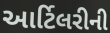
આર્ટિલરીની